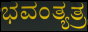
ಭವಂತ್ಯತ್ರ